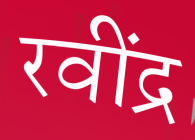
रवींद्र